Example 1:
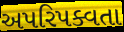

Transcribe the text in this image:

અપરિપક્વતા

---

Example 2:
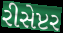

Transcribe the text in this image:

રીસેપ્ટર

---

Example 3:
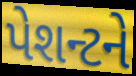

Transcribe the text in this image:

પેશન્ટને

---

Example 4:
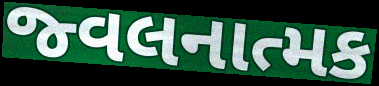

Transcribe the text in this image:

જ્વલનાત્મક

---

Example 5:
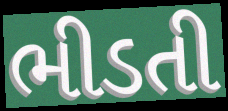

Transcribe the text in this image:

ભીડતી